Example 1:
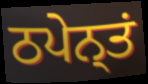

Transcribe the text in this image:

ਠਪੇਨ੍ਤਂ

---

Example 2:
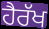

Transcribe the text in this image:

ਹੈਰੱਖ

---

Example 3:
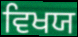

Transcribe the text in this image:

ਵਿਖਯ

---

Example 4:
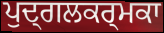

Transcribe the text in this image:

ਪੁਦ੍ਗਲਕਰ੍ਮਕਾ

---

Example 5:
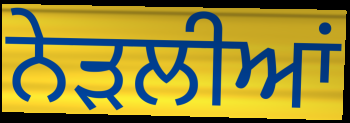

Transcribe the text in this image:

ਨੇੜਲੀਆਂ